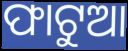
ଫାଟୁଆ